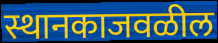
स्थानकाजवळील